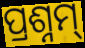
ପ୍ରଶ୍ନମ୍